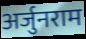
अर्जुनराम